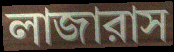
লাজারাস